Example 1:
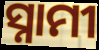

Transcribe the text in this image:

ସ୍ନାମୀ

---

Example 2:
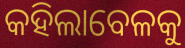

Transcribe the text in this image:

କହିଲାବେଳକୁ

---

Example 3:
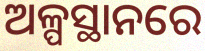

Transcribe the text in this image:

ଅଳ୍ପସ୍ଥାନରେ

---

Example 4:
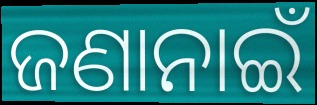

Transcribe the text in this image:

ଜଣାନାଇଁ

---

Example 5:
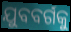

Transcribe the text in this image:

ଯୁବବର୍ଗକୁ